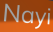
Nayi